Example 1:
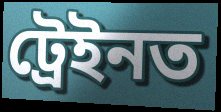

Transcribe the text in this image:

ট্ৰেইনত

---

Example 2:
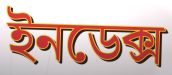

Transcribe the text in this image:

ইনডেক্স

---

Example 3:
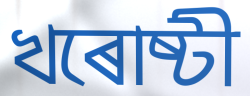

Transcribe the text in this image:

খৰোষ্টী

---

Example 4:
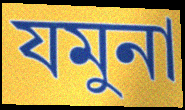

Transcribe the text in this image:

যমুনা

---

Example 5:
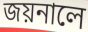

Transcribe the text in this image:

জয়নালে